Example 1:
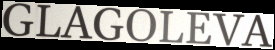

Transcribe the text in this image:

GLAGOLEVA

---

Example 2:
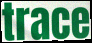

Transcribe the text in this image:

trace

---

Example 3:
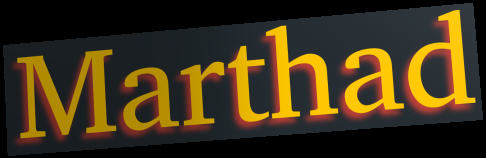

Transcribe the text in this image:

Marthad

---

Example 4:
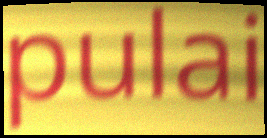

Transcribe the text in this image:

pulai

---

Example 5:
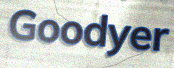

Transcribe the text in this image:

Goodyer